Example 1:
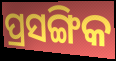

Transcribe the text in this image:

ପ୍ରସଙ୍ଗିକ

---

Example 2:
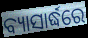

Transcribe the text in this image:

ବ୍ୟାସାର୍ଦ୍ଧରେ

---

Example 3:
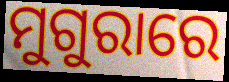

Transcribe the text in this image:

ମୁଗୁରାରେ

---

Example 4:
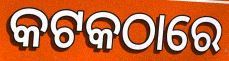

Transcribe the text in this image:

କଟକଠାରେ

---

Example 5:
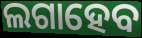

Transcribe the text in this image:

ଲଗାହେବ